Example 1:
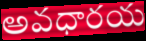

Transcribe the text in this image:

అవధారయ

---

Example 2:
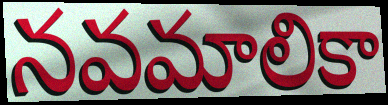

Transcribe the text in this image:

నవమాలికా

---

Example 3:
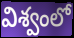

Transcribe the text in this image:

విశ్వంలో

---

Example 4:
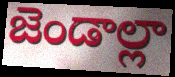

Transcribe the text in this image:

జెండాల్లా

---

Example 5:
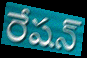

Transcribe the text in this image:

రేషన్